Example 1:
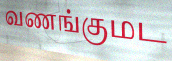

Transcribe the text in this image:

வணங்குமட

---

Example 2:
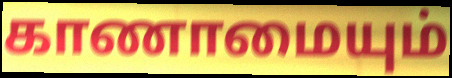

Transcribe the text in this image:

காணாமையும்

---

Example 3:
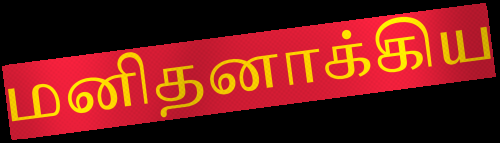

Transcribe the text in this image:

மனிதனாக்கிய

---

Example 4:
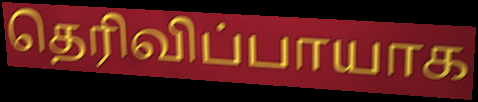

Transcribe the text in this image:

தெரிவிப்பாயாக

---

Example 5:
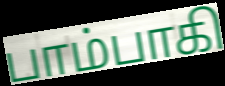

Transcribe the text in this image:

பாம்பாகி